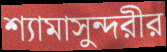
শ্যামাসুন্দরীর